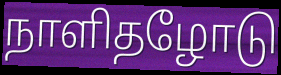
நாளிதழோடு